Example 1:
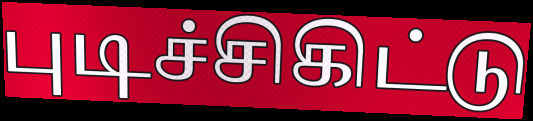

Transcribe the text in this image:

புடிச்சிகிட்டு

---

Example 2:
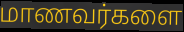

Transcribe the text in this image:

மாணவர்களை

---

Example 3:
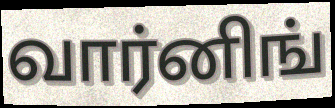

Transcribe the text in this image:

வார்னிங்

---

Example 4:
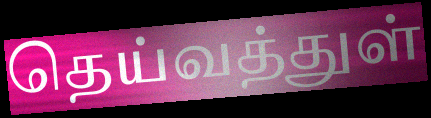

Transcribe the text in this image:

தெய்வத்துள்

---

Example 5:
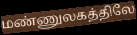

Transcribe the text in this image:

மண்ணுலகத்திலே